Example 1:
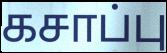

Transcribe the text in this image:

கசாப்பு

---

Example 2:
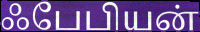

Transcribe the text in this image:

ஃபேபியன்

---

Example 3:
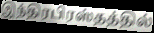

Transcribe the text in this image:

இந்திரபிரஸ்தத்தில்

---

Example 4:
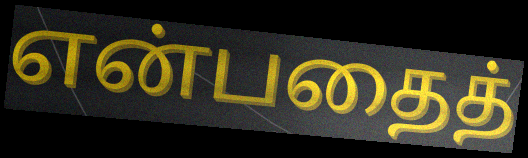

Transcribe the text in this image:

என்பதைத்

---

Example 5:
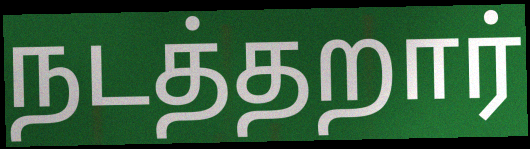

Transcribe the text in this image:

நடத்தறார்